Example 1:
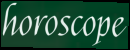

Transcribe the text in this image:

horoscope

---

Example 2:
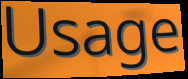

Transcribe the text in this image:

Usage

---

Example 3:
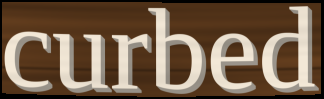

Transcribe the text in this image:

curbed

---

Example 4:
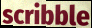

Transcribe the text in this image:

scribble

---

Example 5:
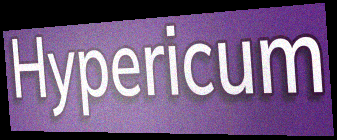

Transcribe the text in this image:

Hypericum